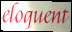
eloquent